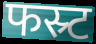
फस्र्ट